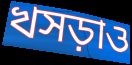
খসড়াও